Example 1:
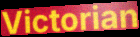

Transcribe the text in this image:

Victorian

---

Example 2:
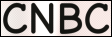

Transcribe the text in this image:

CNBC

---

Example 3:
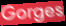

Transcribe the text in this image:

Gorges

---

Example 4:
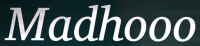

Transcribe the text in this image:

Madhooo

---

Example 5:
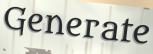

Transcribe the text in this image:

Generate